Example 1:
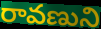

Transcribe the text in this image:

రావణుని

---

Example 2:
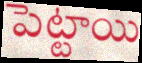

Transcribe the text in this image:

పెట్టాయి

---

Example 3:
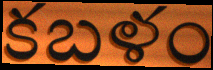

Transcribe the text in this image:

కబళం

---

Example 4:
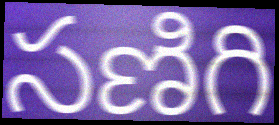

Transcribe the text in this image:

సణిగి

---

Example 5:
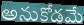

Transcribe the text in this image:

అనుకోడమే